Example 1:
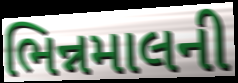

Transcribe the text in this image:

ભિન્નમાલની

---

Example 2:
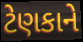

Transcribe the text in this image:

ટેણકાને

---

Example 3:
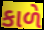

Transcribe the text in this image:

કાળે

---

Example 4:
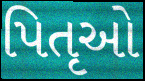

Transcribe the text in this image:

પિતૃઓ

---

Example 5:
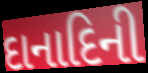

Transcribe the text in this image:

દાનાદિની